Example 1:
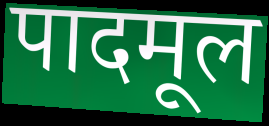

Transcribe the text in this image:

पादमूल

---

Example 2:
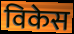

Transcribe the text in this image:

विकेस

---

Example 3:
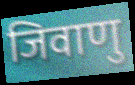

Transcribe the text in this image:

जिवाणु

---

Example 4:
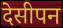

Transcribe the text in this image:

देसीपन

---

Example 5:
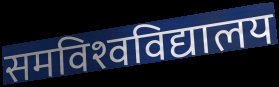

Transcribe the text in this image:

समविश्वविद्यालय